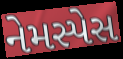
નેમસ્પેસ